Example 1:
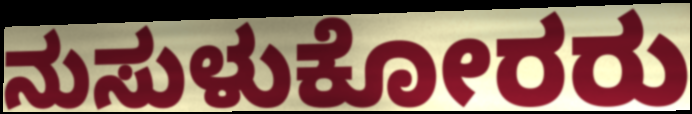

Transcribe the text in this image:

ನುಸುಳುಕೋರರು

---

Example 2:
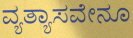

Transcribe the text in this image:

ವ್ಯತ್ಯಾಸವೇನೂ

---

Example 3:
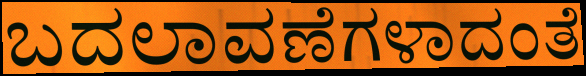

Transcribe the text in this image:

ಬದಲಾವಣೆಗಳಾದಂತೆ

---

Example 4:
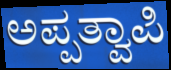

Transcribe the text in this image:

ಅಪ್ಪತ್ವಾಪಿ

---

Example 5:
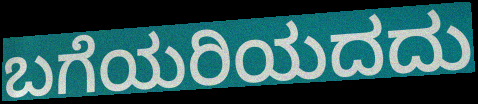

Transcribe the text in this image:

ಬಗೆಯರಿಯದದು